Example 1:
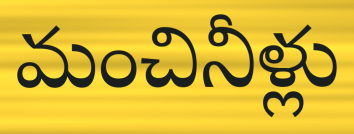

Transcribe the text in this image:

మంచినీళ్లు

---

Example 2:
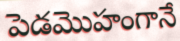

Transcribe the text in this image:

పెడమొహంగానే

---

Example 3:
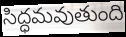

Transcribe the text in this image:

సిద్ధమవుతుంది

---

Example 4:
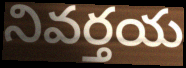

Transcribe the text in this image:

నివర్తయ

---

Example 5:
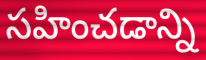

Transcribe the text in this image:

సహించడాన్ని